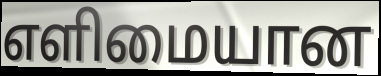
எளிமையான